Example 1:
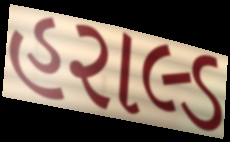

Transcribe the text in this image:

હરાલ્ડ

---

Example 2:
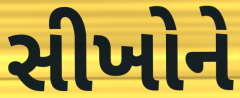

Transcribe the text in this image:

સીખોને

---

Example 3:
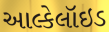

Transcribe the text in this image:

આલ્કેલૉઇડ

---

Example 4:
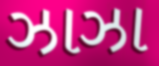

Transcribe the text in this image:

ઝાઝા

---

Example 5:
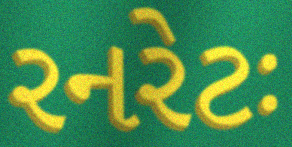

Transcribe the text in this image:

રનરેટઃ